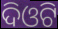
ଦିଓଟି